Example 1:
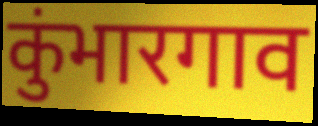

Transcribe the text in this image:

कुंभारगाव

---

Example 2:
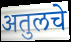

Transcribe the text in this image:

अतुलचे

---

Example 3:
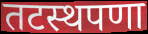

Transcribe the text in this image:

तटस्थपणा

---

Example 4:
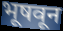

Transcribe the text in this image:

भूषवून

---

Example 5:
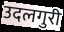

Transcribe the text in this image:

उदलगुरी